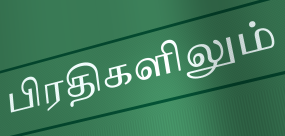
பிரதிகளிலும்